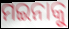
ମଇନାକୁ